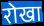
रोखा